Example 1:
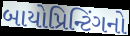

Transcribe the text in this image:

બાયોપ્રિન્ટિંગનો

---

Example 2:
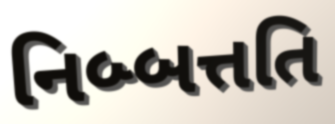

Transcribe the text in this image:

નિબ્બત્તતિ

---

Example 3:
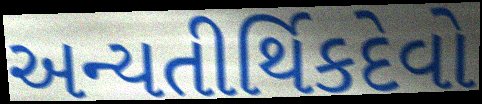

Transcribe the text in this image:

અન્યતીર્થિકદેવો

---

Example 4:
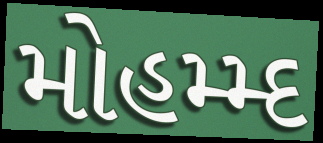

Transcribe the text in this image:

મોહમ્મ્દ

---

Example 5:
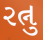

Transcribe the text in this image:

રત્નુ